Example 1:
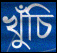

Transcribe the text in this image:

খুঁচি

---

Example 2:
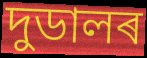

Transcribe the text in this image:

দুডালৰ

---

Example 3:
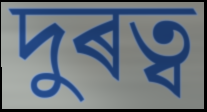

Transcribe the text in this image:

দুৰত্ব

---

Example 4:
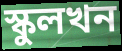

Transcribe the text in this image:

স্কুলখন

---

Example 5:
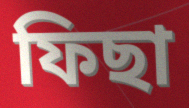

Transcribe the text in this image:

ফিছা